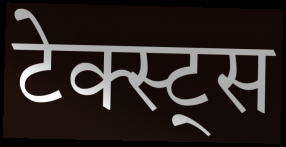
टेक्स्ट्स